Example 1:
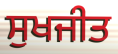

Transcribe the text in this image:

ਸੁਖਜੀਤ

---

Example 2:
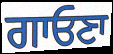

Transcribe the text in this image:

ਗਾਓਣਾ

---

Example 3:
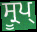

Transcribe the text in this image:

ਸ੍ਰੂਪ੍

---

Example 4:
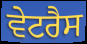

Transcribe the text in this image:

ਵੇਟਰੈਸ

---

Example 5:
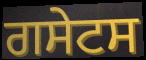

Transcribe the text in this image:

ਗਸੇਟਸ